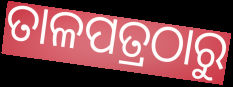
ତାଳପତ୍ରଠାରୁ